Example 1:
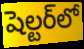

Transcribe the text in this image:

షెల్టర్‌లో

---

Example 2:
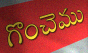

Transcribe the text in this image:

గొంచెము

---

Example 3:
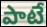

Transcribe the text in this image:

పాటే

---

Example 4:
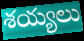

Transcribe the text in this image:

శయ్యలు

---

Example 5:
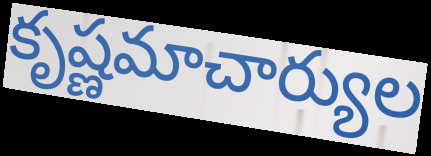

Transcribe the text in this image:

కృష్ణమాచార్యుల